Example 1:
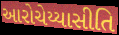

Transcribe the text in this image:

આરોચેય્યાસીતિ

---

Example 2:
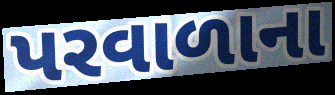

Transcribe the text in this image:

પરવાળાના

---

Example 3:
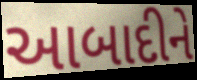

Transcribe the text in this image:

આબાદીને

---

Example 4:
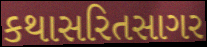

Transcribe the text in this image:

કથાસરિતસાગર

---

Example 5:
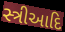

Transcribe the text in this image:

સ્ત્રીઆદિ